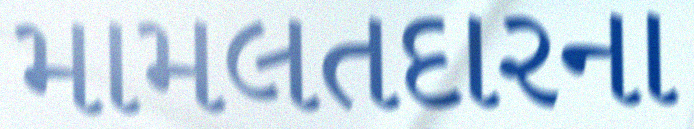
મામલતદારના